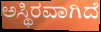
ಅಸ್ಥಿರವಾಗಿದೆ